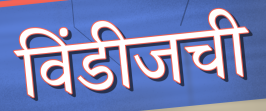
विंडीजची